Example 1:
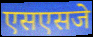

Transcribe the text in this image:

एसएसजे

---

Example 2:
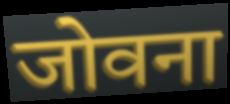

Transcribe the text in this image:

जोवना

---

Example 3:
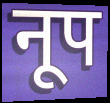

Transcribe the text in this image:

नूप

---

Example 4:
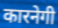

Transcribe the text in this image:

कारनेगी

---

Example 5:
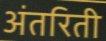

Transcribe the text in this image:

अंतरिती